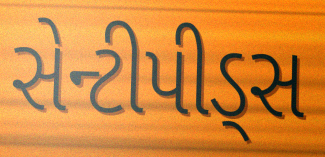
સેન્ટીપીડ્સ